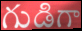
గుడిగా